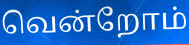
வென்றோம்